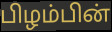
பிழம்பின்